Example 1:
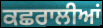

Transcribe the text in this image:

ਕਛਰਾਲੀਆਂ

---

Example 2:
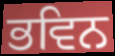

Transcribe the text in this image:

ਭਵਿਨ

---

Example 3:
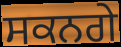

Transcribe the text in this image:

ਸਕਨਗੇ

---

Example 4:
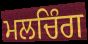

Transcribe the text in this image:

ਮਲਚਿੰਗ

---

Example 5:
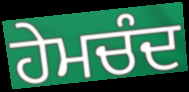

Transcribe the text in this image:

ਹੇਮਚੰਦ